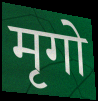
मृगो